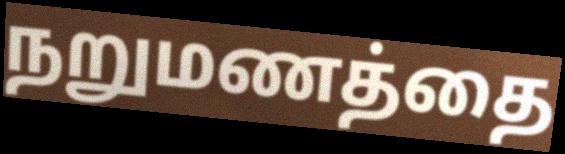
நறுமணத்தை